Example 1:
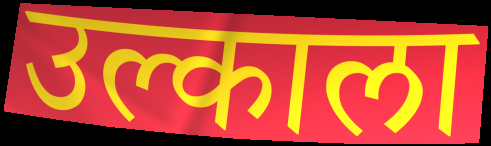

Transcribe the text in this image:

उल्काला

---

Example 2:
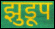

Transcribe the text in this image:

झुडूप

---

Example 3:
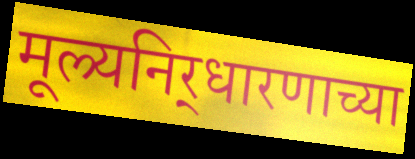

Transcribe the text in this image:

मूल्यनिर्धारणाच्या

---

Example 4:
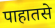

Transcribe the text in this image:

पाहातसे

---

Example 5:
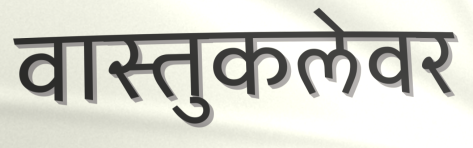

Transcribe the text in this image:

वास्तुकलेवर